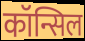
कॉन्सिल